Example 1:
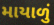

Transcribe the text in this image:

માયાળું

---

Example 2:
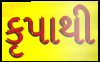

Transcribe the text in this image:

કૃપાથી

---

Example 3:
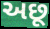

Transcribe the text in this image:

અછૂ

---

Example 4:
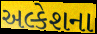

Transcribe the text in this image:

અલ્કેશના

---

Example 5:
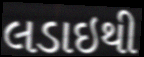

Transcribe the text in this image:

લડાઇથી